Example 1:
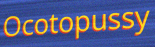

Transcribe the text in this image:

Ocotopussy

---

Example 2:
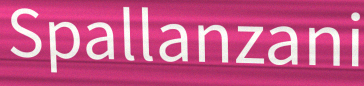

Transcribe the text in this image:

Spallanzani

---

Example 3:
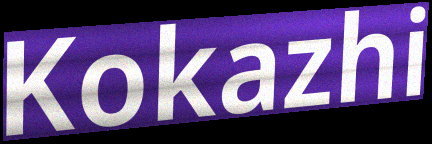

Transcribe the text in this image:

Kokazhi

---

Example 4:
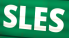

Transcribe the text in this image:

SLES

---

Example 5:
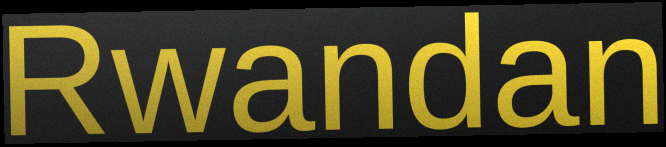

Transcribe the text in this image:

Rwandan